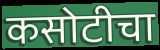
कसोटीचा